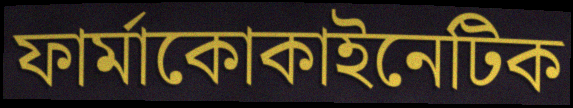
ফার্মাকোকাইনেটিক